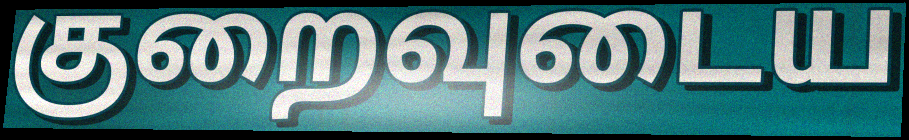
குறைவுடைய